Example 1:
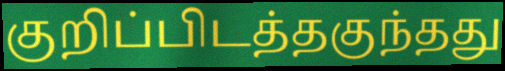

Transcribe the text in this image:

குறிப்பிடத்தகுந்தது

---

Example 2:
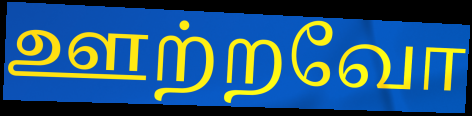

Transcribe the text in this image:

ஊற்றவோ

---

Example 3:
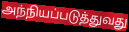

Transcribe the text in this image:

அந்நியப்படுத்துவது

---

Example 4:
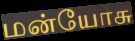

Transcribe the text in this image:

மன்யோசு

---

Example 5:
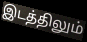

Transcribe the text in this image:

இடத்திலும்